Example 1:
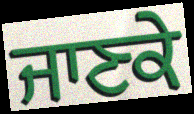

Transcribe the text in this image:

ਜਾਣਕੇ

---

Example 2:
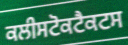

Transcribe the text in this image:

ਕਲੀਸਟੋਕਟੈਕਟਸ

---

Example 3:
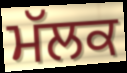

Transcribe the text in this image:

ਮੱਲਕ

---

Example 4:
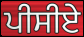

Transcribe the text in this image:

ਪੀਸੀਏ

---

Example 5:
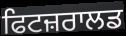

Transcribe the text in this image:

ਫਿਟਜ਼ਰਾਲਡ